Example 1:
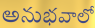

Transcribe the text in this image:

అనుభవాలో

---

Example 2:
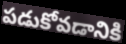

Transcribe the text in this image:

పడుకోవడానికి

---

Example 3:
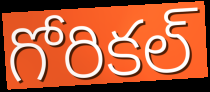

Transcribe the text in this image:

గోరికల్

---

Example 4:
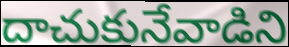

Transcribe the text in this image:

దాచుకునేవాడిని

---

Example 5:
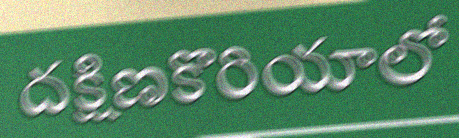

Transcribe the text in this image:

దక్షిణకొరియాలో